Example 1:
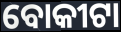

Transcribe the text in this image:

ବୋକୀଟା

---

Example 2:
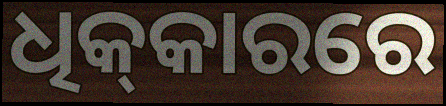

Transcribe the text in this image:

ଧିକ୍‌କାରରେ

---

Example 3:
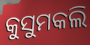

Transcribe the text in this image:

କୁସୁମକଲି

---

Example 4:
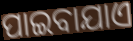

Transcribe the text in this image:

ପାଇବାଯାଏ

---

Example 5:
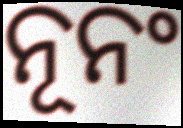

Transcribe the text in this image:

ନୂନଂ